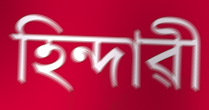
হিন্দাৱী